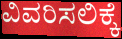
ವಿವರಿಸಲಿಕ್ಕೆ